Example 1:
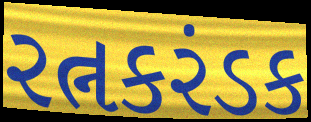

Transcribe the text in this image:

રત્નકરંડક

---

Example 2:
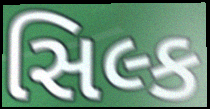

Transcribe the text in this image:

સિલ્ક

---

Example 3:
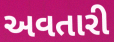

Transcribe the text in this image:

અવતારી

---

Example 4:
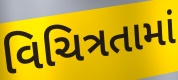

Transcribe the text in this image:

વિચિત્રતામાં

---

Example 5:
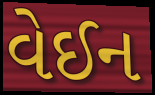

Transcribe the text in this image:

વેઈન